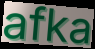
afka